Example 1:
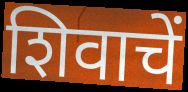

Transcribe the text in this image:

शिवाचें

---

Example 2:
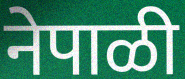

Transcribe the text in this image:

नेपाळी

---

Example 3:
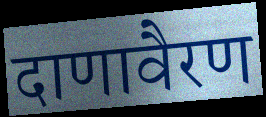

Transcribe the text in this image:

दाणावैरण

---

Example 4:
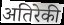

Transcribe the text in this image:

अतिरेकी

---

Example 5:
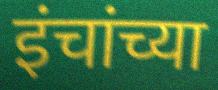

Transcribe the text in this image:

इंचांच्या